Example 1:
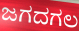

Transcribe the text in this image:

ಜಗದಗಲ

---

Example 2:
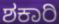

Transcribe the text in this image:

ಶಕಾರಿ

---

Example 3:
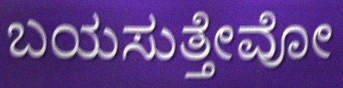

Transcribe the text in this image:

ಬಯಸುತ್ತೇವೋ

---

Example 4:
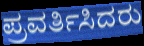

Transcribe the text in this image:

ಪ್ರವರ್ತಿಸಿದರು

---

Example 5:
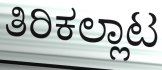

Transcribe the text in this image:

ತಿರಿಕಲ್ಲಾಟ